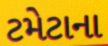
ટમેટાના